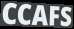
CCAFS